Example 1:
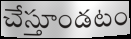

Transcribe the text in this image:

చేస్తూండటం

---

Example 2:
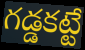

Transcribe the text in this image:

గడ్డకట్టే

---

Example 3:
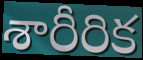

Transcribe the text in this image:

శారీరిక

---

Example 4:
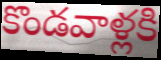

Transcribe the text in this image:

కొండవాళ్లకి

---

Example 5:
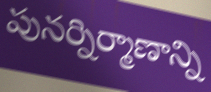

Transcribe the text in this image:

పునర్నిర్మాణాన్ని